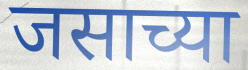
जसाच्या